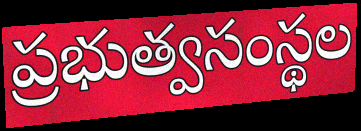
ప్రభుత్వసంస్థల